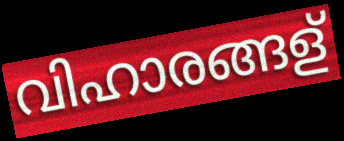
വിഹാരങ്ങള്